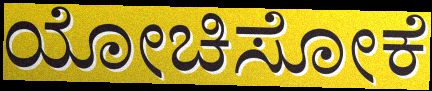
ಯೋಚಿಸೋಕೆ